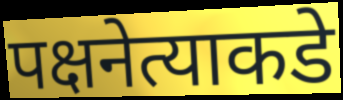
पक्षनेत्याकडे